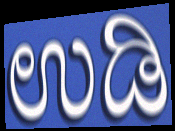
ಉಡಿ